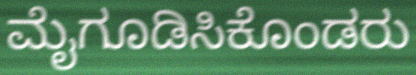
ಮೈಗೂಡಿಸಿಕೊಂಡರು